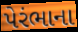
પેરંભાના